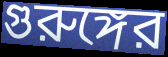
গুরুঙ্গের